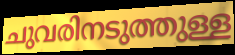
ചുവരിനടുത്തുള്ള